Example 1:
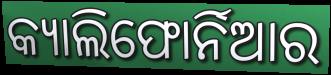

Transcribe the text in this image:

କ୍ୟାଲିଫୋର୍ନିଆର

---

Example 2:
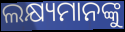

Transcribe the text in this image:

ଲକ୍ଷ୍ୟମାନଙ୍କୁ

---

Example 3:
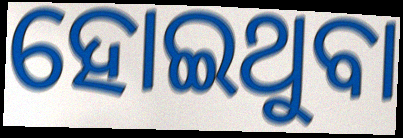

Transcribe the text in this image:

ହୋଇଥୁବା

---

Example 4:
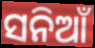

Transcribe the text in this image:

ସନିଆଁ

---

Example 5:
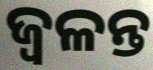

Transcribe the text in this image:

ଜ୍ଵଳନ୍ତ